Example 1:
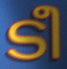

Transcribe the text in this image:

ടീ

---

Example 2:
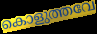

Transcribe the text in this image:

കൊളുത്തവേ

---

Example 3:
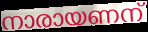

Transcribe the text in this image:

നാരായണന്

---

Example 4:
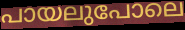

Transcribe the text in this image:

പായലുപോലെ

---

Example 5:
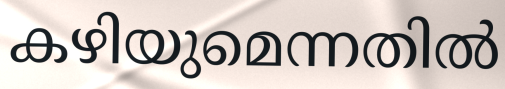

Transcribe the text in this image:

കഴിയുമെന്നതിൽ